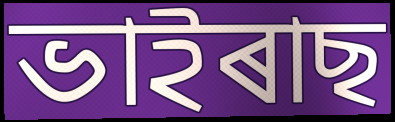
ভাইৰাছ